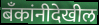
बँकांनीदेखील